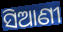
ସିଆଣୀ